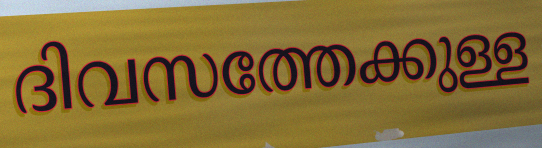
ദിവസത്തേക്കുള്ള